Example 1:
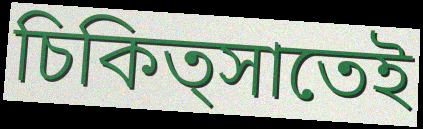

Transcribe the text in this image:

চিকিত্সাতেই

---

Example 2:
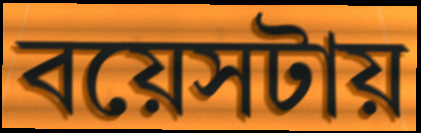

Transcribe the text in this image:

বয়েসটায়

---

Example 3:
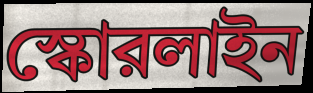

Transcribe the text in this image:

স্কোরলাইন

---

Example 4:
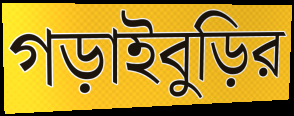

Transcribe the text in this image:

গড়াইবুড়ির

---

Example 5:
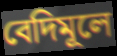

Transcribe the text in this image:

বেদিমূলে